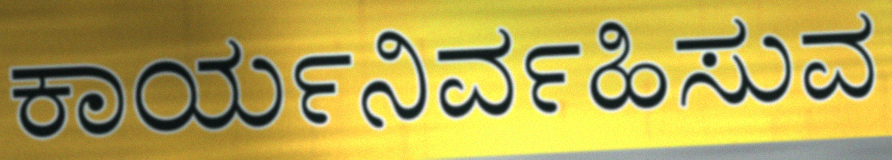
ಕಾರ್ಯನಿರ್ವಹಿಸುವ